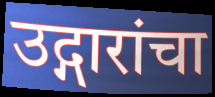
उद्गारांचा